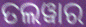
ତଲୱାର